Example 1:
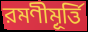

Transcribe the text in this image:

রমণীমূর্ত্তি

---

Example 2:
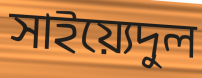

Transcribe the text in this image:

সাইয়্যেদুল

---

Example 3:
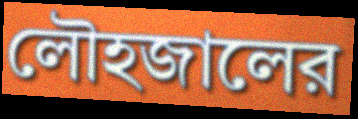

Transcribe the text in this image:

লৌহজালের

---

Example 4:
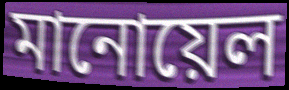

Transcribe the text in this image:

মানোয়েল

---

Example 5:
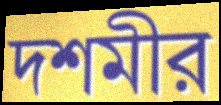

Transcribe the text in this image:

দশমীর